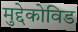
मुद्देकोविड